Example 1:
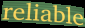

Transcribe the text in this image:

reliable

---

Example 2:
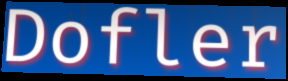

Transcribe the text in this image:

Dofler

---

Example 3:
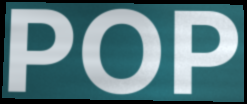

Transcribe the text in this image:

POP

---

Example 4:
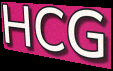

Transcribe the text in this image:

HCG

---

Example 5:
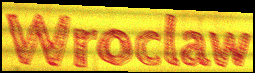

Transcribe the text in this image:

Wroclaw